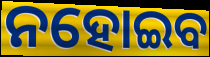
ନହୋଇବ